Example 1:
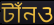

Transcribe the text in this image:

টাঁনও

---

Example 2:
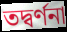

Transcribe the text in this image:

তদ্বর্ণনা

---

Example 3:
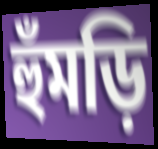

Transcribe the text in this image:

হুঁমড়ি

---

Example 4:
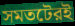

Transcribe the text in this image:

সমতটেরই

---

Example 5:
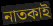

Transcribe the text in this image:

নাতকাই